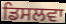
ਡਿਸਲਵਾ